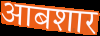
आबशार